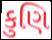
કુણિ